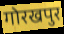
गोरखपुर